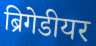
ब्रिगेडीयर